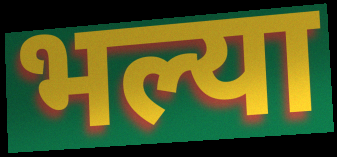
भल्या